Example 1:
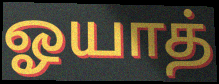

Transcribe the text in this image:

ஓயாத்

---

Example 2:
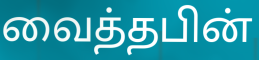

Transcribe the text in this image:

வைத்தபின்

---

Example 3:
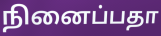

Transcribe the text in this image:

நினைப்பதா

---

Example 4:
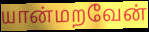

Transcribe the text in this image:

யான்மறவேன்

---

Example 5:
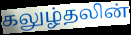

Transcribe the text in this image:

கலுழ்தலின்